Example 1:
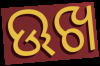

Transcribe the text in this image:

ଊଖ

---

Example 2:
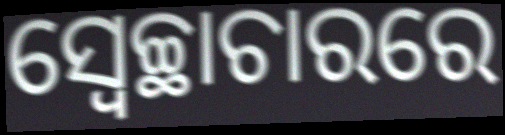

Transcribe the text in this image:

ସ୍ବେଚ୍ଛାଚାରରେ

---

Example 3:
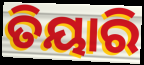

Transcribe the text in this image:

ତିୟାରି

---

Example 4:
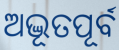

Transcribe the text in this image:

ଅଦ୍ଭୂତପୂର୍ବ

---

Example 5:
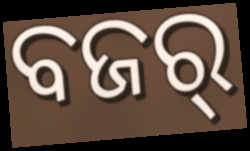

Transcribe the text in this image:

ବଜର୍